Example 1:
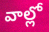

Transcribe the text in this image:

వాల్లో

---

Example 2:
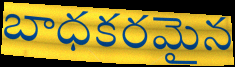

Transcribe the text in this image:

బాధకరమైన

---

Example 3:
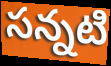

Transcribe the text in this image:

సన్నటి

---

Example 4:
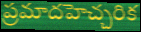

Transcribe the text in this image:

ప్రమాదహెచ్చరిక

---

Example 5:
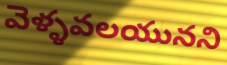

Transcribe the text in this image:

వెళ్ళవలయునని